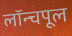
लॉन्चपूल